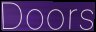
Doors